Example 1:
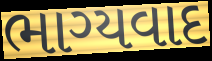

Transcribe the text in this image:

ભાગ્યવાદ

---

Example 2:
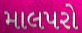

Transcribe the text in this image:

માલપરો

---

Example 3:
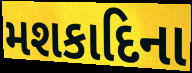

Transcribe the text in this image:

મશકાદિના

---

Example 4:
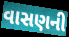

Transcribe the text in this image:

વાસણની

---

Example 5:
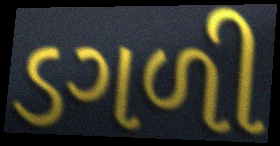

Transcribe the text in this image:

ડગળી